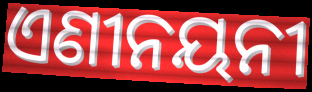
ଏଣୀନୟନୀ